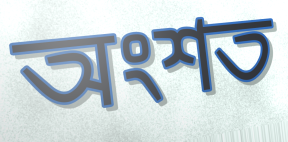
অংশত